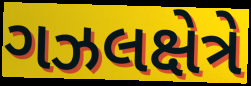
ગઝલક્ષેત્રે